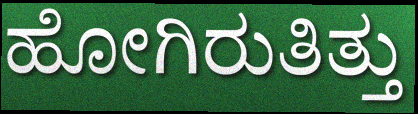
ಹೋಗಿರುತಿತ್ತು